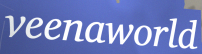
veenaworld